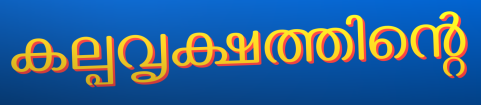
കല്പവൃക്ഷത്തിന്റെ